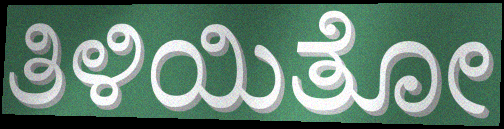
ತಿಳಿಯಿತೋ